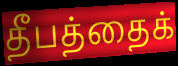
தீபத்தைக்